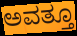
ಅವತ್ತೂ